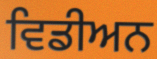
ਵਿਡੀਅਨ